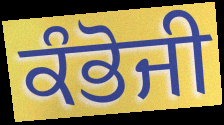
ਕੰਭੋਜੀ